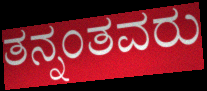
ತನ್ನಂತವರು